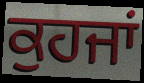
ਕੁਹਜਾਂ